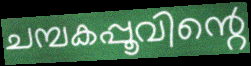
ചമ്പകപ്പൂവിന്റെ